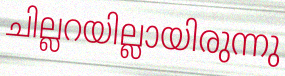
ചില്ലറയില്ലായിരുന്നു